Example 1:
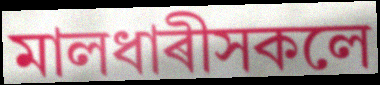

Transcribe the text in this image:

মালধাৰীসকলে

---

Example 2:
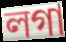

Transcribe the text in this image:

লগা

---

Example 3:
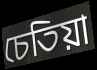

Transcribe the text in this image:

চেতিয়া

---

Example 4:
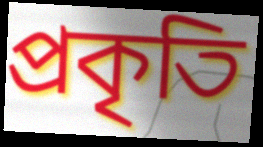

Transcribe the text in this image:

প্ৰকৃতি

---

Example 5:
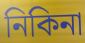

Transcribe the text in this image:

নিকিনা